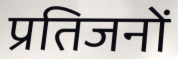
प्रतिजनों